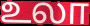
உலா